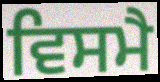
ਵਿਸਮੈ